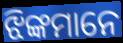
ଝିଙ୍କମାନେ